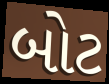
બોટ